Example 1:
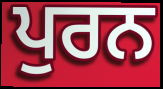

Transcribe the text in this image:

ਪੁਰਨ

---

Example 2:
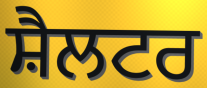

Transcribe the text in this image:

ਸ਼ੈਲਟਰ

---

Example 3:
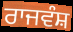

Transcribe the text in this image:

ਰਾਜਵੰਸ਼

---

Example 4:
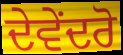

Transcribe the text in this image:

ਦੇਵੇਂਦਰੋ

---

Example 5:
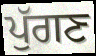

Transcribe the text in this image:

ਪੁੱਗਣ